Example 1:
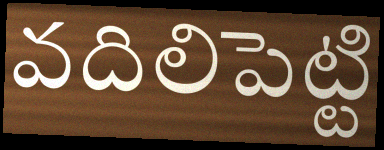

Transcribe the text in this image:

వదిలిపెట్టి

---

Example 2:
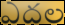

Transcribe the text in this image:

ఎదల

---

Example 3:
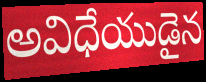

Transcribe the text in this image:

అవిధేయుడైన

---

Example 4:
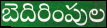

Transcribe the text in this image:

బెదిరింపుల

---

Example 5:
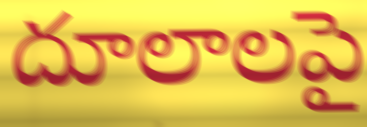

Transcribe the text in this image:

దూలాలపై